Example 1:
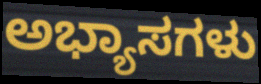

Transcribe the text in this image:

ಅಭ್ಯಾಸಗಳು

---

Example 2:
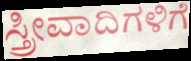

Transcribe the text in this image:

ಸ್ತ್ರೀವಾದಿಗಳಿಗೆ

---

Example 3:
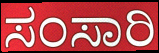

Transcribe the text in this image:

ಸಂಸಾರಿ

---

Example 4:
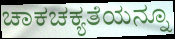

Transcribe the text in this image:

ಚಾಕಚಕ್ಯತೆಯನ್ನೂ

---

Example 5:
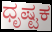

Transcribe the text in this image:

ಧೃಷ್ಟಕ